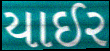
યાઈર